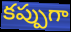
కప్పుగా